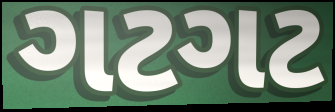
ગટગટ